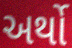
અર્થો